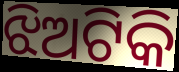
ଝିଅଟିକି